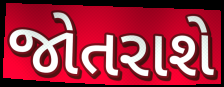
જોતરાશે